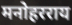
मनोहरराय